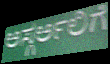
ಅಸ್ಗರ್ಅಲಿಗೆ